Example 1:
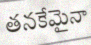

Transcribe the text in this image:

తనకేమైనా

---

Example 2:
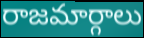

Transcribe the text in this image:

రాజమార్గాలు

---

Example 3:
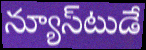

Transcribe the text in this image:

న్యూస్‌టుడే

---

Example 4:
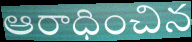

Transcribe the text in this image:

ఆరాధించిన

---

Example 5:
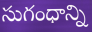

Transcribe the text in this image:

సుగంధాన్ని